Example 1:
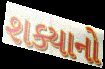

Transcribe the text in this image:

શક્યાનો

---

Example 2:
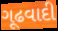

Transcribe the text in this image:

ગૂઢવાદી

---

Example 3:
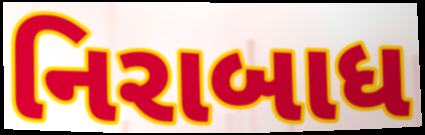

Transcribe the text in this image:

નિરાબાધ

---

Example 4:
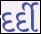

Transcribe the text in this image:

દર્દી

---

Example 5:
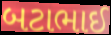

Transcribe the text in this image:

બટાભાઈ